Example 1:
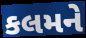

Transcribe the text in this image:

કલમને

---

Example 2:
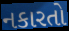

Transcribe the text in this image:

નકારતો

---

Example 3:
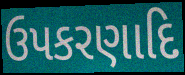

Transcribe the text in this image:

ઉપકરણાદિ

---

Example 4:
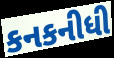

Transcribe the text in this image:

કનકનીધી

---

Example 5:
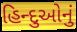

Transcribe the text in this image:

હિન્દુઓનું